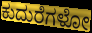
ಕುದುರೆಗಳೋ